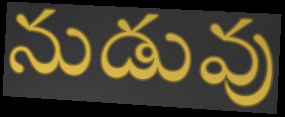
నుడువు